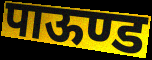
पाऊण्ड